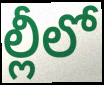
ల్లీలో